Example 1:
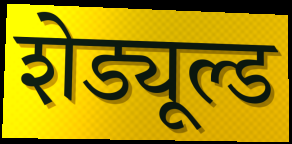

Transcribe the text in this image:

शेड्यूल्ड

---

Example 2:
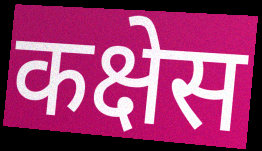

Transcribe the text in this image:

कक्षेस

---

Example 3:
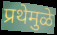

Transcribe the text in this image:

प्रथेमुळे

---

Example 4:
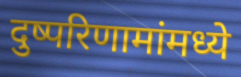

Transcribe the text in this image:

दुष्परिणामांमध्ये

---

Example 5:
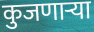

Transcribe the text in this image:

कुजणाऱ्या